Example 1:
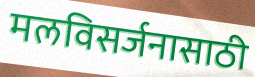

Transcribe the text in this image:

मलविसर्जनासाठी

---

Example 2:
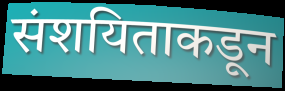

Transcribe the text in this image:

संशयिताकडून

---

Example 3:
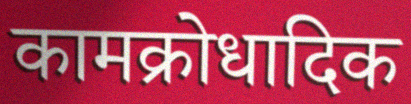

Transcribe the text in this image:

कामक्रोधादिक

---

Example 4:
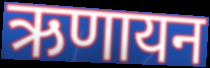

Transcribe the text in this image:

ऋणायन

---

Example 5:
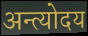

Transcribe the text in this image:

अन्त्योदय